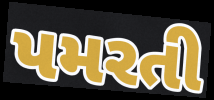
પમરતી